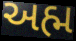
અહ્મ